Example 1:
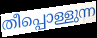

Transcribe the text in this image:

തീപ്പൊള്ളുന്ന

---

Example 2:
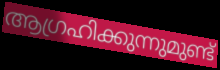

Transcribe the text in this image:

ആഗ്രഹിക്കുന്നുമുണ്ട്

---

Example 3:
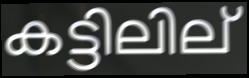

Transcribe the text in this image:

കട്ടിലില്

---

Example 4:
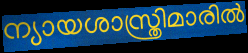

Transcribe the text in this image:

ന്യായശാസ്ത്രിമാരിൽ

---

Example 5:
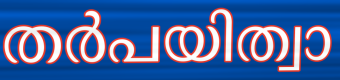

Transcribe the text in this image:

തർപയിത്വാ